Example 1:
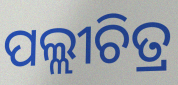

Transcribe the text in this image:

ପଲ୍ଲୀଚିତ୍ର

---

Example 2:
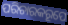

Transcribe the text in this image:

ପରିଚାରକରୂପେ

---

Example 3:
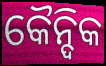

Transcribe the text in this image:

କୈନ୍ଦିକ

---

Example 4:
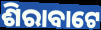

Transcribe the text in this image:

ଶିରାବାଟେ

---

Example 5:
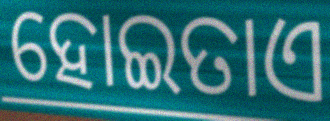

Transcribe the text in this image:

ହୋଇତାଏ